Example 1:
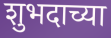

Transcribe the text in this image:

शुभदाच्या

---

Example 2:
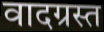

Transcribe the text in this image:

वादग्रस्त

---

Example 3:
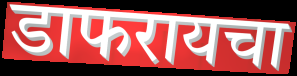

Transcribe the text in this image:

डाफरायचा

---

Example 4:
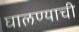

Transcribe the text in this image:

घालण्याची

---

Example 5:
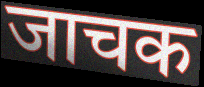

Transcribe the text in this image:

जाचक